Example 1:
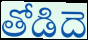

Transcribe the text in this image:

తోడిదె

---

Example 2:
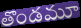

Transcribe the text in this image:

తొండమూ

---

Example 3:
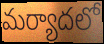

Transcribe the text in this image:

మర్యాదలో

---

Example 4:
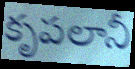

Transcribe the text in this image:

కృపలానీ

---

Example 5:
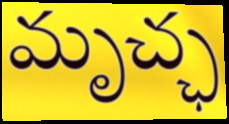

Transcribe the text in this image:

మృచ్ఛ